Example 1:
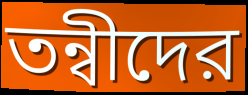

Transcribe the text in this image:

তন্বীদের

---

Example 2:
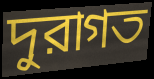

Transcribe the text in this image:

দুরাগত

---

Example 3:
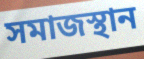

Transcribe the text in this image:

সমাজস্থান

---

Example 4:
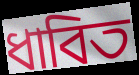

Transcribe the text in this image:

ধাবিত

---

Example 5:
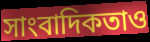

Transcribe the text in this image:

সাংবাদিকতাও